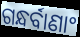
ଗନ୍ଧର୍ବାଣାଂ